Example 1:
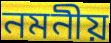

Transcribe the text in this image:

নমনীয়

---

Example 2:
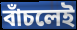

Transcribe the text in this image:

বাঁচলেই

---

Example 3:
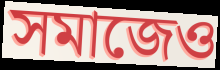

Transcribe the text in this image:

সমাজেও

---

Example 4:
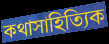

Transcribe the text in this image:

কথাসাহিত্যিক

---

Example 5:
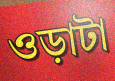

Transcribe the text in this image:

ওড়াটা